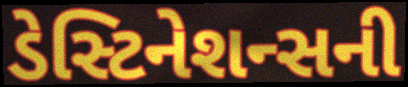
ડેસ્ટિનેશન્સની